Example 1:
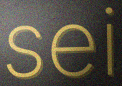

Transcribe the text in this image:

sei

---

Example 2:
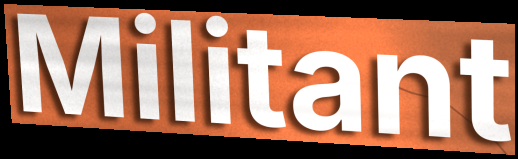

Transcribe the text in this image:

Militant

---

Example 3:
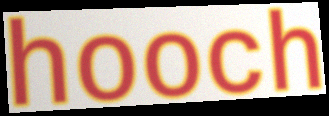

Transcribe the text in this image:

hooch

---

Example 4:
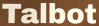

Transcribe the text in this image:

Talbot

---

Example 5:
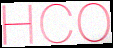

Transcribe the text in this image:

HCO